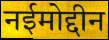
नईमोद्दीन